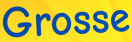
Grosse